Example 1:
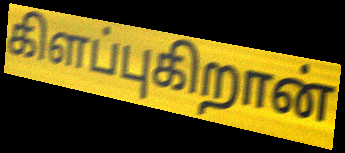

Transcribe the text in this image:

கிளப்புகிறான்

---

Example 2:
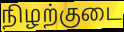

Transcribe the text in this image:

நிழற்குடை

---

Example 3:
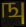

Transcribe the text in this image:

ஙு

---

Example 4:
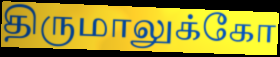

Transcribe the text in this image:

திருமாலுக்கோ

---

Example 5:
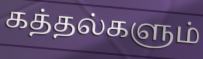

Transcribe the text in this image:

கத்தல்களும்